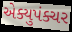
એક્યુપંક્ચર